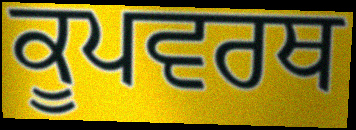
ਕੂਪਵਰਥ